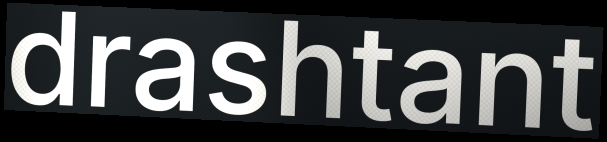
drashtant